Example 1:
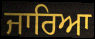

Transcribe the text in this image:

ਜਾਰਿਆ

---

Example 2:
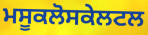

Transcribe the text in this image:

ਮਸੂਕਲੋਸਕੇਲਟਲ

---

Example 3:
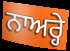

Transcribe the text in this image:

ਨਾਅਰ੍ਹੇ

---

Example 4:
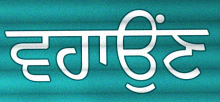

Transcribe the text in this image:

ਵਹਾਉਂਣ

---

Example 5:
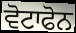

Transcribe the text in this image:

ਵੋਟਾਫੋਨ